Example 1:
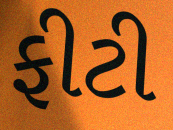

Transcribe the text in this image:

ફીટી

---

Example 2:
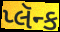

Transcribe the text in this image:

પ્લૅન્ક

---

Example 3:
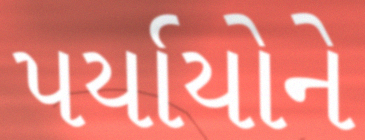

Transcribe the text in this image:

પર્યાયોને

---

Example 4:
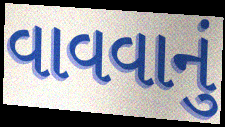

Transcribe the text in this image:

વાવવાનું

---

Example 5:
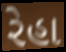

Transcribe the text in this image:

રેહા